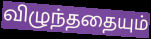
விழுந்ததையும்